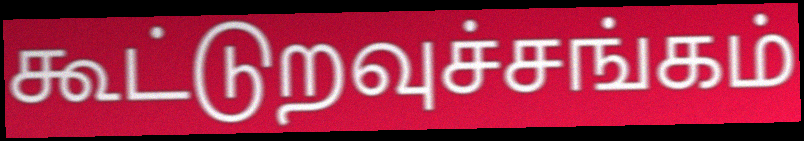
கூட்டுறவுச்சங்கம்